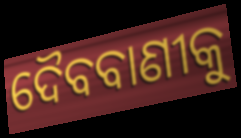
ଦୈବବାଣୀକୁ